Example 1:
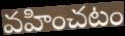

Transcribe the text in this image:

వహించటం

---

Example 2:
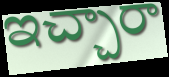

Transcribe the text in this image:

ఇచ్చారా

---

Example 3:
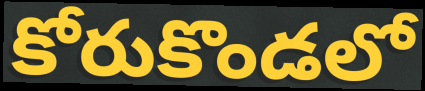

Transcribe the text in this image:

కోరుకొండలో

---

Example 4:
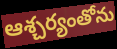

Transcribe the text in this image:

ఆశ్చర్యంతోను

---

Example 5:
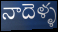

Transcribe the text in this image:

నాదెళ్ళ